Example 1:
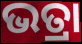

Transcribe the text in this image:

ଭତ୍ରା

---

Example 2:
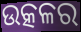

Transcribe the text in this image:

ଉତ୍କଳର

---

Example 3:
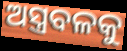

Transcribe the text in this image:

ଅସ୍ତ୍ରବଳକୁ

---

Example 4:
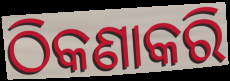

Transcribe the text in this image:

ଠିକଣାକରି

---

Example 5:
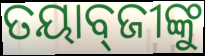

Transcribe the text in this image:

ତୟାବ୍‌ଜୀଙ୍କୁ